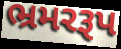
ભ્રમરરૂપ